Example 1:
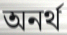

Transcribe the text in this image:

অনৰ্থ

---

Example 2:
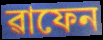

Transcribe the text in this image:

ৱাফেন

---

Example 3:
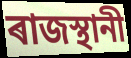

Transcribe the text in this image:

ৰাজস্থানী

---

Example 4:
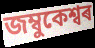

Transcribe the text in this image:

জম্বুকেশ্বৰ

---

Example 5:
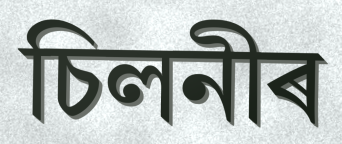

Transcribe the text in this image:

চিলনীৰ